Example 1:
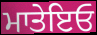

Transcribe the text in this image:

ਮਾਤੇਇਓ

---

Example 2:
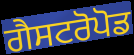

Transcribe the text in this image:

ਗੈਸਟਰੋਪੋਡ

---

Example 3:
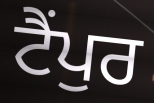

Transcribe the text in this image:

ਟੈਂਪੁਰ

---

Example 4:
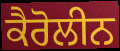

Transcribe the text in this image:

ਕੈਰੋਲੀਨ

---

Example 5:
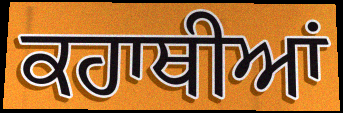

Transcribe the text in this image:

ਕਹਾਥੀਆਂ